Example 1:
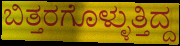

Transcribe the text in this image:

ಬಿತ್ತರಗೊಳ್ಳುತ್ತಿದ್ದ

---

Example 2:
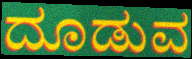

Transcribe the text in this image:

ದೂಡುವ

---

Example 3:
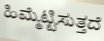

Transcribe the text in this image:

ಹಿಮ್ಮೆಟ್ಟಿಸುತ್ತದೆ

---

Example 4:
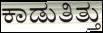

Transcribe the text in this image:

ಕಾಡುತಿತ್ತು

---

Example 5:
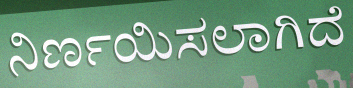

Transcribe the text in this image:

ನಿರ್ಣಯಿಸಲಾಗಿದೆ